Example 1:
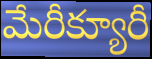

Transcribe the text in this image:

మేరీక్యూరీ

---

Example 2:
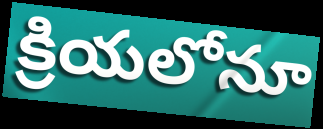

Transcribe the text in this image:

క్రియలోనూ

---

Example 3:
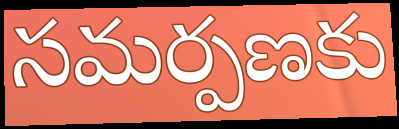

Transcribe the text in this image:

సమర్పణకు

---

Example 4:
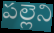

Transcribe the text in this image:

పల్లెని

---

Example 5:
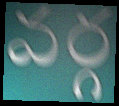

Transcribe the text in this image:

వర్గ